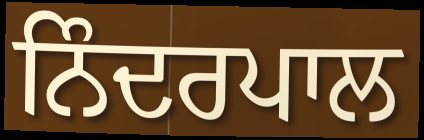
ਨਿੰਦਰਪਾਲ